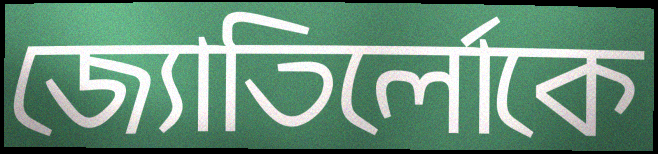
জ্যোতির্লোকে